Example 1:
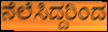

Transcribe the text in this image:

ನೆಲೆಸಿದ್ದರಿಂದ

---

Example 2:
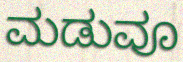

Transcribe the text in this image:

ಮಡುವೂ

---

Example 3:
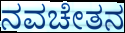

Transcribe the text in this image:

ನವಚೇತನ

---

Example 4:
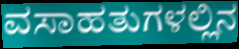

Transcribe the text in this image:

ವಸಾಹತುಗಳಲ್ಲಿನ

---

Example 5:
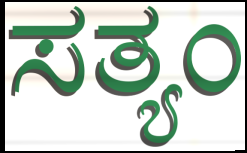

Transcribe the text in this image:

ಸತ್ಯಂ